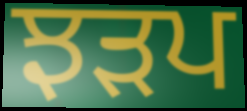
ਝੜਪ